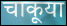
चाकूया